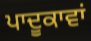
ਪਾਦੂਕਾਵਾਂ